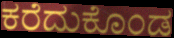
ಕರೆದುಕೊಂಡ